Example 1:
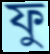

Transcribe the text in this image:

ফু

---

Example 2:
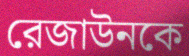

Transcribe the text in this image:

রেজাউনকে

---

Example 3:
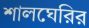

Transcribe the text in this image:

শালঘেরির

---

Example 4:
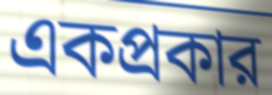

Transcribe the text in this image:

একপ্রকার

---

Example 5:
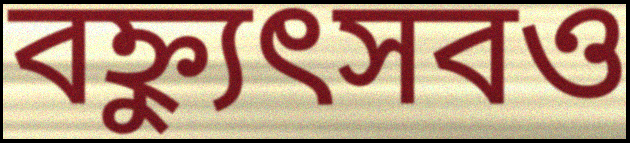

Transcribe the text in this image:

বহ্ন্যুৎসবও